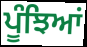
ਪੂੰਝਿਆਂ